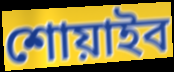
শোয়াইব